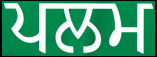
ਪਲਮ